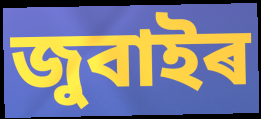
জুবাইৰ